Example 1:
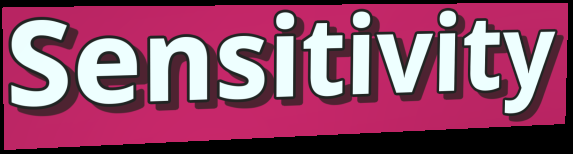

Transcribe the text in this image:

Sensitivity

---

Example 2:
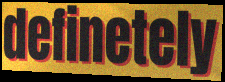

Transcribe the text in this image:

definetely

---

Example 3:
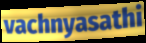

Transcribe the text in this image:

vachnyasathi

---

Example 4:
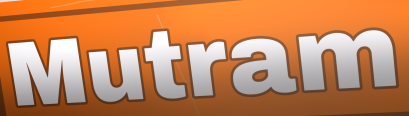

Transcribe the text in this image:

Mutram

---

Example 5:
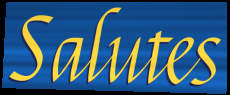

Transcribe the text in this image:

Salutes